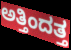
ಅತ್ತಿಂದತ್ತ